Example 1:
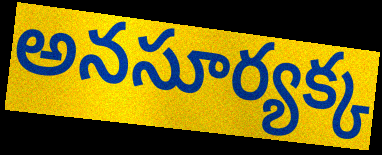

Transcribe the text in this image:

అనసూర్యక్క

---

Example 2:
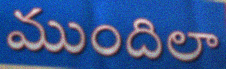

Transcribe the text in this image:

ముందిలా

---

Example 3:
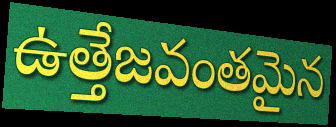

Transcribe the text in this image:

ఉత్తేజవంతమైన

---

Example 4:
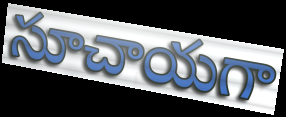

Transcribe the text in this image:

సూచాయగా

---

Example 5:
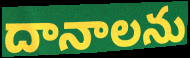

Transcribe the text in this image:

దానాలను